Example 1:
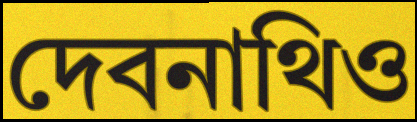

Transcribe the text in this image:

দেবনাথিও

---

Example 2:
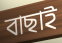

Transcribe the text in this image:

বাছাই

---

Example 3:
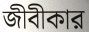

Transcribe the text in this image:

জীবীকার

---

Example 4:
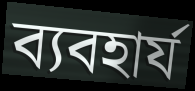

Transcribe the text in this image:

ব্যবহার্য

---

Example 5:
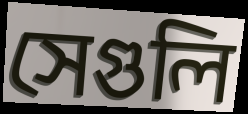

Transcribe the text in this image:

সেগুলি